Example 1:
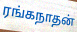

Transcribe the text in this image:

ரங்கநாதன்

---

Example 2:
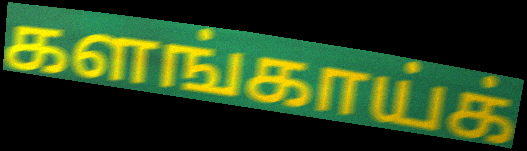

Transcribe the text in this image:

களங்காய்க்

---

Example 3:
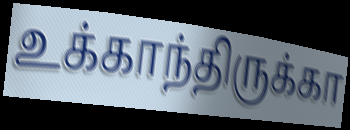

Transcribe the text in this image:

உக்காந்திருக்கா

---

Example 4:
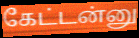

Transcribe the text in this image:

கேட்டன்னு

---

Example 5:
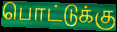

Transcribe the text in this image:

பொட்டுக்கு